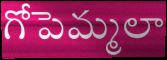
గోపెమ్మలా